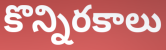
కొన్నిరకాలు